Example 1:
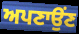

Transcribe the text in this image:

ਅਪਣਾਉਂਣ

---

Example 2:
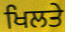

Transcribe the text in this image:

ਖਿਲਤੇ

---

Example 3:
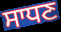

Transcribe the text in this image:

ਸਾਧਣ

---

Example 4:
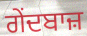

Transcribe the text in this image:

ਗੇਂਦਬਾਜ਼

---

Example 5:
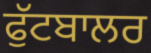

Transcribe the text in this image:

ਫੁੱਟਬਾਲਰ